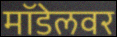
मॉडेलवर